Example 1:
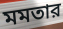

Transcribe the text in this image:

মমতার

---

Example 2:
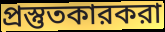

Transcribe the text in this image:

প্রস্তুতকারকরা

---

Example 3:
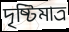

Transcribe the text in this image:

দৃষ্টিমাত্র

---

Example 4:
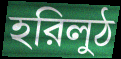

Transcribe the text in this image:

হরিলুঠ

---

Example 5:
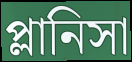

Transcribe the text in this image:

প্লানিসা